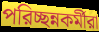
পরিচ্ছন্নকর্মীরা